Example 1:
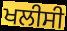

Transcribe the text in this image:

ਖਲੀਸੀ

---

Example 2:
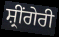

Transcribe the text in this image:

ਸ਼੍ਰੀਂਗੇਰੀ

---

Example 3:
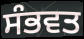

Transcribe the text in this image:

ਸੰਭਵਤ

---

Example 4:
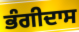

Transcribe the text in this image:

ਭੰਗੀਦਾਸ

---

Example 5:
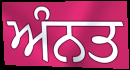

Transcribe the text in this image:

ਅੰਨਤ